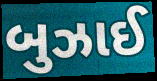
બુઝાઈ